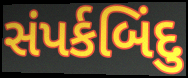
સંપર્કબિંદુ